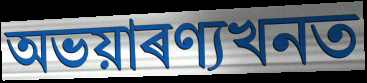
অভয়াৰণ্যখনত